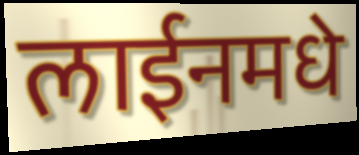
लाईनमधे